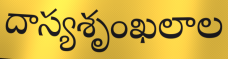
దాస్యశృంఖలాల